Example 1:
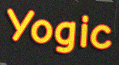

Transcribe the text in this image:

Yogic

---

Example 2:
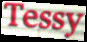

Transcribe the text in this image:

Tessy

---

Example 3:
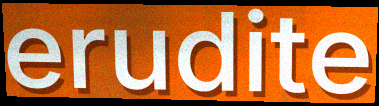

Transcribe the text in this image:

erudite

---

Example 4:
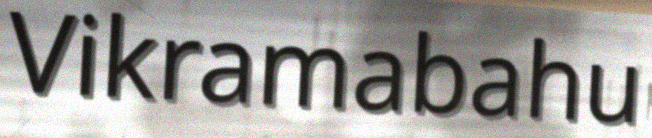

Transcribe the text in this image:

Vikramabahu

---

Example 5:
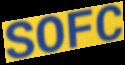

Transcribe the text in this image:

SOFC